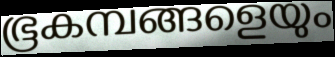
ഭൂകമ്പങ്ങളെയും